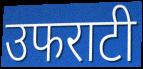
उफराटी